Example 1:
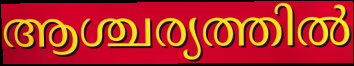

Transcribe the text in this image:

ആശ്ചര്യത്തിൽ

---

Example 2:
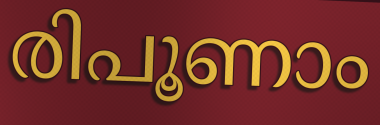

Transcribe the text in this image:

രിപൂണാം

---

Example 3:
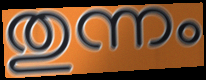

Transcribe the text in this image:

തുന്നം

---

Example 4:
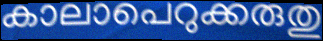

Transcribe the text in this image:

കാലാപെറുക്കരുതു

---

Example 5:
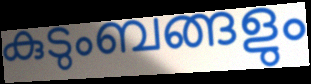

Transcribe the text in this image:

കുടുംബങ്ങളും